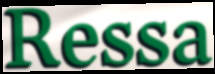
Ressa